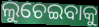
ଲୁଚେଇବାକୁ